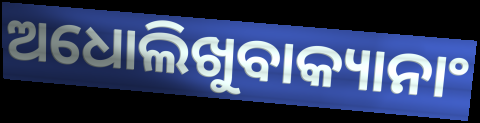
ଅଧୋଲିଖୁବାକ୍ୟାନାଂ